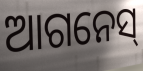
ଆଗନେସ୍